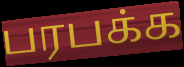
பரபக்க